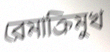
রেমাক্রিমুখ